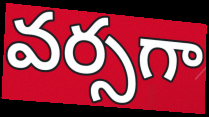
వర్సగా